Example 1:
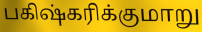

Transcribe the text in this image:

பகிஷ்கரிக்குமாறு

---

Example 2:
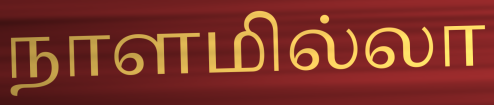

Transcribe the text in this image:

நாளமில்லா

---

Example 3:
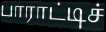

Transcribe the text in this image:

பாராட்டிச்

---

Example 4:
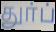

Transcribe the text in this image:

துர்ப்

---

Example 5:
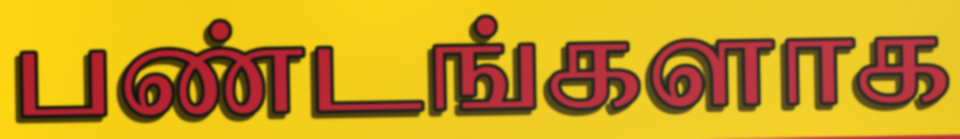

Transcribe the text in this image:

பண்டங்களாக